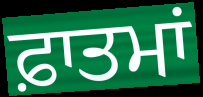
ਫ਼ਾਤਮਾਂ